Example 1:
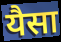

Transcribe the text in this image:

यैसा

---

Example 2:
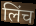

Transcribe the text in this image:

लिंच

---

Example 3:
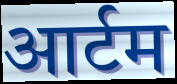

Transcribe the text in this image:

आर्टम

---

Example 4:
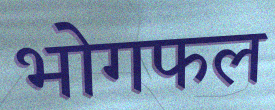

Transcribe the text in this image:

भोगफल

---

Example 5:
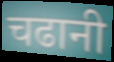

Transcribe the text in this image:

चढानी